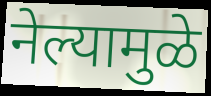
नेल्यामुळे